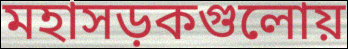
মহাসড়কগুলোয়